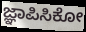
ಜ್ಞಾಪಿಸಿಕೋ